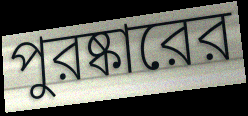
পুরষ্কারের